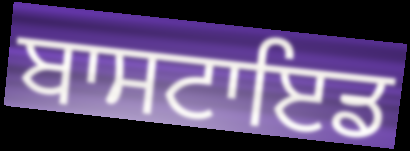
ਬਾਸਟਾਇਡ